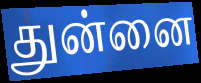
துன்னை